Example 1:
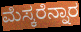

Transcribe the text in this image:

ಮೆಸ್ಕರೆನ್ನಾರ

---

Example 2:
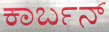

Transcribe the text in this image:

ಕಾರ್ಬನ್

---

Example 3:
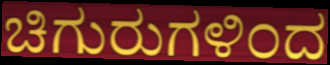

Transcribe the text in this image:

ಚಿಗುರುಗಳಿಂದ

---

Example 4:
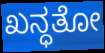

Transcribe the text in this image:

ಖನ್ಧತೋ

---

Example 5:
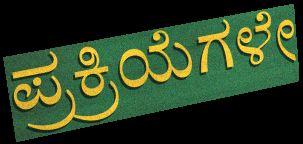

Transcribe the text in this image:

ಪ್ರಕ್ರಿಯೆಗಳೇ